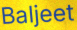
Baljeet